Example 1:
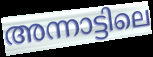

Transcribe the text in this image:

അന്നാട്ടിലെ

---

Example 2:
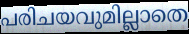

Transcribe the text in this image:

പരിചയവുമില്ലാതെ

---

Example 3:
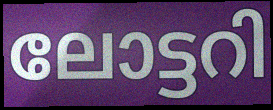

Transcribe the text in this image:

ലോട്ടറി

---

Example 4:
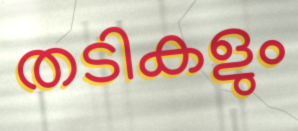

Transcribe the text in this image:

തടികളും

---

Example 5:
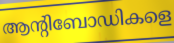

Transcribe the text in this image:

ആന്റിബോഡികളെ